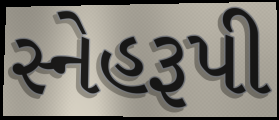
સ્નેહરૂપી